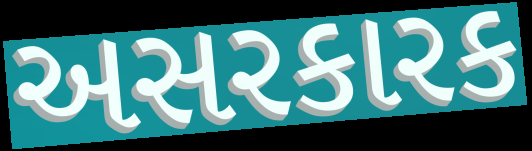
અસરકારક